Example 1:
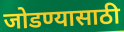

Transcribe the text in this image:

जोडण्यासाठी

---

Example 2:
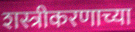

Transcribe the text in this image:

शस्त्रीकरणाच्या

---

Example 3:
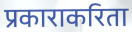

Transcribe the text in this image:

प्रकाराकरिता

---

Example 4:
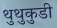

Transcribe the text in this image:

थुथुकुडी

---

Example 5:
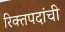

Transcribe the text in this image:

रिक्तपदांची